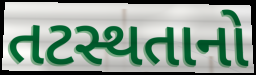
તટસ્થતાનો